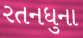
રતનધુના